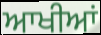
ਆਖੀਆਂ